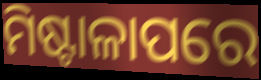
ମିଷ୍ଟାଳାପରେ